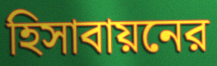
হিসাবায়নের